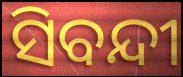
ସିବନ୍ଦୀ